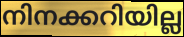
നിനക്കറിയില്ല